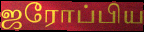
ஜரோப்பிய